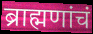
ब्राह्मणांचं